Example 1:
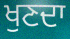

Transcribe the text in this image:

ਖੁਣਦਾ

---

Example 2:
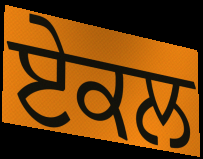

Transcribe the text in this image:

ਏਕਲ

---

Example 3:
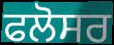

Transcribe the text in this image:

ਫਲੋਸਰ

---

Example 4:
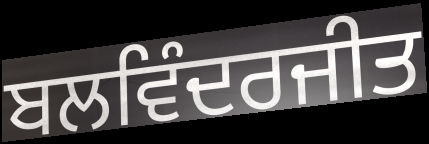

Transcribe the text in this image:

ਬਲਵਿੰਦਰਜੀਤ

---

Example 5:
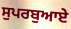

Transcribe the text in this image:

ਸੁਪਰਬੁਆਏ